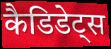
कैडिडेट्स